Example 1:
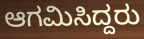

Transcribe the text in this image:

ಆಗಮಿಸಿದ್ದರು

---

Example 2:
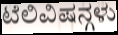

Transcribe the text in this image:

ಟೆಲಿವಿಷನ್ಗಳು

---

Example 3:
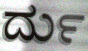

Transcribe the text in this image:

ರ್ದು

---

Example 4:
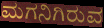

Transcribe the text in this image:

ಮಗನಿಗಿರುವ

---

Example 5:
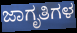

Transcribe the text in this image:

ಜಾಗೃತಿಗಳ